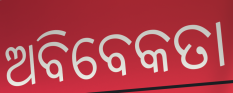
ଅବିବେକତା